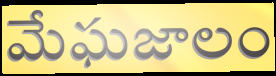
మేఘజాలం